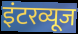
इंटरव्यूज